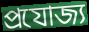
প্ৰযোজ্য